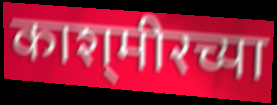
काश्मीरच्या